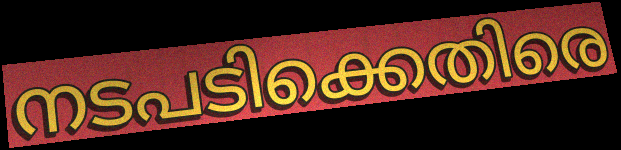
നടപടിക്കെതിരെ